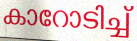
കാറോടിച്ച്